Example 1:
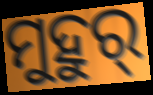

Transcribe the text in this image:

ମୁହୁର୍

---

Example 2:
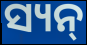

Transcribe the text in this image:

ସ୍ୟନ୍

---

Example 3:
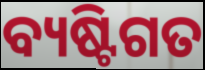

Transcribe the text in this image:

ବ୍ୟଷ୍ଟିଗତ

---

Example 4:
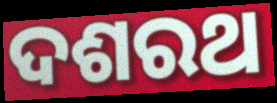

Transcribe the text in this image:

ଦଶରଥ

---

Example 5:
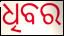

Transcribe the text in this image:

ଧିବର